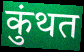
कुंथत